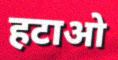
हटाओ